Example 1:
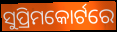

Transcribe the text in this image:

ସୁପ୍ରିମକୋର୍ଟରେ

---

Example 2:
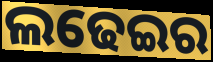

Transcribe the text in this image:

ଲଢେଇର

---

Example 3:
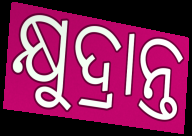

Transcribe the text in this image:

କ୍ଷୁଦ୍ରାନ୍ତ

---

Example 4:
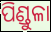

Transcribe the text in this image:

ପିଣ୍ଡୁଳା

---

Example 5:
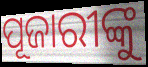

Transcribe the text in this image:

ପୂଜାରୀଙ୍କୁ